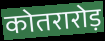
कोतरारोड़